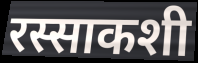
रस्साकशी